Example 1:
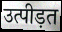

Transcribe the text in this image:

उत्पीड़त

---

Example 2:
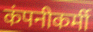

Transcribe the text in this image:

कंपनीकर्मी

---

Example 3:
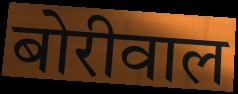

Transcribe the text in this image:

बोरीवाल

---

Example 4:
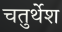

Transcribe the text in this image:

चतुर्थेश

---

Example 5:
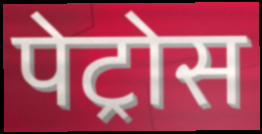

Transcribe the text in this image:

पेट्रोस